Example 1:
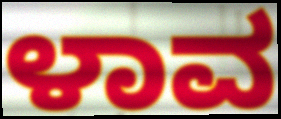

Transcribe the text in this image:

ಳಾವ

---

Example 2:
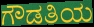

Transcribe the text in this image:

ಗೌಡತಿಯ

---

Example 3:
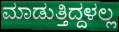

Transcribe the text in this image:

ಮಾಡುತ್ತಿದ್ದಳಲ್ಲ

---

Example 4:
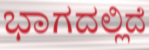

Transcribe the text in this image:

ಭಾಗದಲ್ಲಿದೆ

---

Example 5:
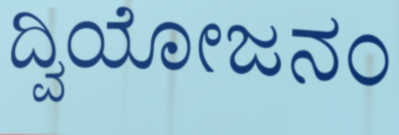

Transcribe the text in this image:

ದ್ವಿಯೋಜನಂ